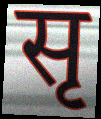
सृ